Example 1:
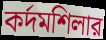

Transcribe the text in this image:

কর্দমশিলার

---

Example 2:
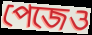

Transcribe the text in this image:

পেজেও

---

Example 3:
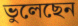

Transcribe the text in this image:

ভুলেছেন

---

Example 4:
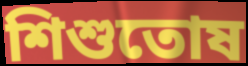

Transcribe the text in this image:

শিশুতোষ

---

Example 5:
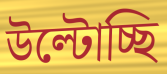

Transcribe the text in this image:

উল্টোচ্ছি